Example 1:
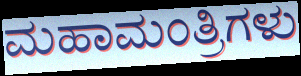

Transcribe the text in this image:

ಮಹಾಮಂತ್ರಿಗಳು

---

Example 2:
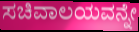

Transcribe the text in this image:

ಸಚಿವಾಲಯವನ್ನೇ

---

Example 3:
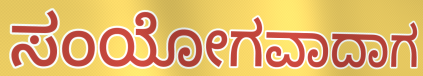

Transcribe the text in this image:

ಸಂಯೋಗವಾದಾಗ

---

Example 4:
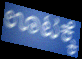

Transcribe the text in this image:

ಊಟಕ್ಕೆ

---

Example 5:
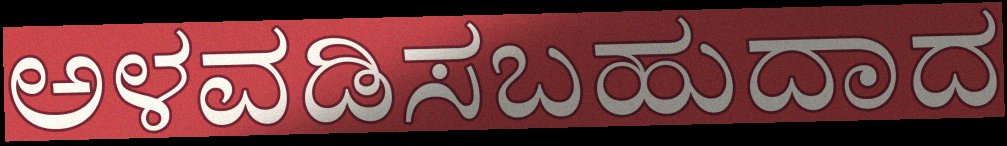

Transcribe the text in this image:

ಅಳವಡಿಸಬಹುದಾದ